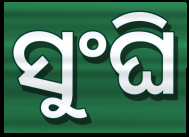
ସୁଂଘି